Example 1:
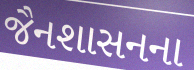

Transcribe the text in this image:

જૈનશાસનના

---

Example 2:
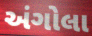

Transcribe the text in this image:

અંગોલા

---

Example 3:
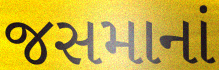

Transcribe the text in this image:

જસમાનાં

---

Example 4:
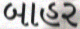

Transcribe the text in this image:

બાહર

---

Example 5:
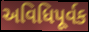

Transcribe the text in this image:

અવિધિપૂર્વક